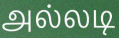
அல்லடி